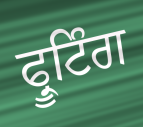
ਫ੍ਰੂਟਿੰਗ